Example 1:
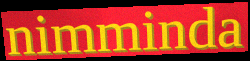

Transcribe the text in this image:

nimminda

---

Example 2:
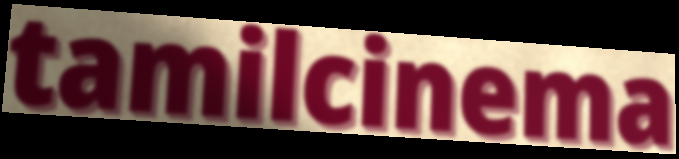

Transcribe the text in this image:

tamilcinema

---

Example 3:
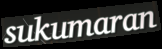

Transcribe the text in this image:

sukumaran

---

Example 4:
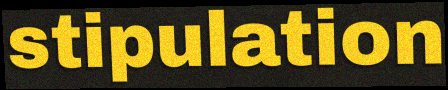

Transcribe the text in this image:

stipulation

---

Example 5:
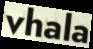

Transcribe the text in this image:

vhala